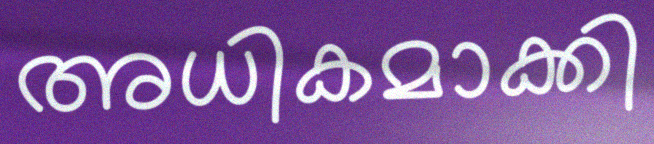
അധികമാക്കി